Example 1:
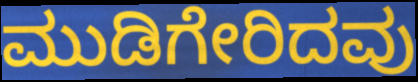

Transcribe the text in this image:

ಮುಡಿಗೇರಿದವು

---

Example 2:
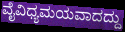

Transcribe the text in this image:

ವೈವಿಧ್ಯಮಯವಾದದ್ದು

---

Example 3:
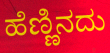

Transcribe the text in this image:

ಹೆಣ್ಣಿನದು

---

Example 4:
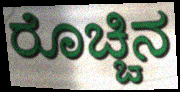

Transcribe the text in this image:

ರೊಚ್ಚಿನ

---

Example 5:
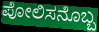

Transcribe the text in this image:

ಪೋಲಿಸನೊಬ್ಬ